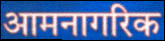
आमनागरिक